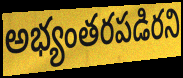
అభ్యంతరపడిరని